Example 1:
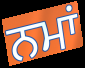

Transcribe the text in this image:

ਨਮਾਂ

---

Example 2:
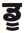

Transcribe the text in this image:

ਡੂ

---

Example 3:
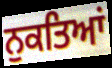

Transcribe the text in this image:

ਨੁਕਤਿਆਂ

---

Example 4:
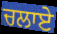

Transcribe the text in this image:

ਚਲਾਏ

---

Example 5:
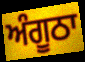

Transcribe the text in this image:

ਅੰਗੂਠਾ